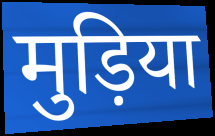
मुड़िया